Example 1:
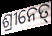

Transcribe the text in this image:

ଶ୍ରୀନେତ୍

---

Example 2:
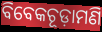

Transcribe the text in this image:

ବିବେକଚୂଡ଼ାମଣି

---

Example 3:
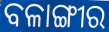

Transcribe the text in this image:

ବଳାଙ୍ଗୀର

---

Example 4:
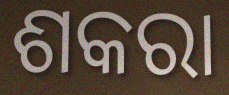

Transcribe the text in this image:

ଶକରା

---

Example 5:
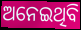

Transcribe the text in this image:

ଅନେଇଥିବି